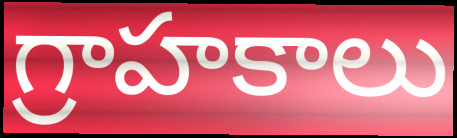
గ్రాహకాలు